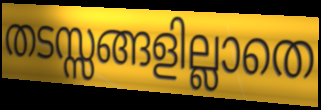
തടസ്സങ്ങളില്ലാതെ